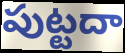
పుట్టదా